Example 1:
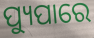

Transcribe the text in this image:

ପ୍ୟୁପାରେ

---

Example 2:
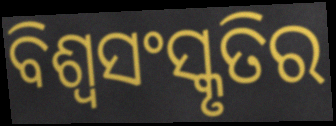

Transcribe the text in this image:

ବିଶ୍ୱସଂସ୍କୃତିର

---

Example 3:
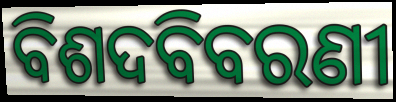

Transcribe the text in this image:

ବିଶଦବିବରଣୀ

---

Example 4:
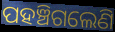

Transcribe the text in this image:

ପହଞ୍ଚିଗଲେଣି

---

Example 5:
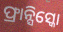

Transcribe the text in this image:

ଫ୍ରାନ୍ସିସ୍କୋ